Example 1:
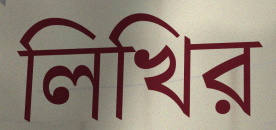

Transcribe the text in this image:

লিখির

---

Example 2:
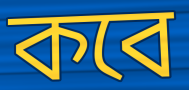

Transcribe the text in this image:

কবে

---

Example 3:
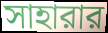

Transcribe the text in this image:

সাহারার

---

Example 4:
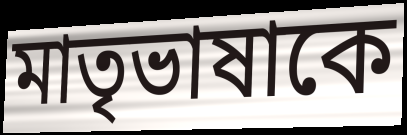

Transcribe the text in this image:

মাতৃভাষাকে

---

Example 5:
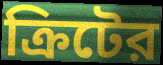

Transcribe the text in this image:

ক্রিটের